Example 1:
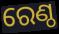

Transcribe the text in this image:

ରେଣ୍ଠ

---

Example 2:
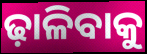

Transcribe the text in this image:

ଢ଼ାଳିବାକୁ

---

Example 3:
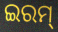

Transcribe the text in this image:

ଇରମ୍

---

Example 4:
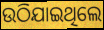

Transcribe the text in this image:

ଉଠିଯାଇଥିଲେ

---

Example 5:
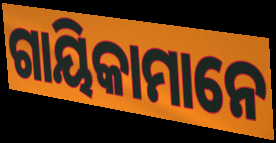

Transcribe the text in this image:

ଗାୟିକାମାନେ